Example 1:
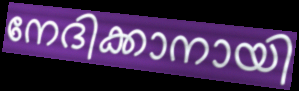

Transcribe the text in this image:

നേദിക്കാനായി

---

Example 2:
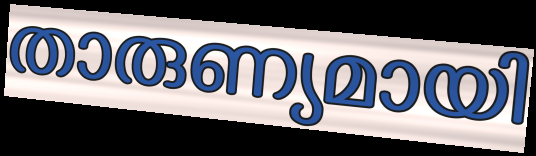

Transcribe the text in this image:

താരുണ്യമായി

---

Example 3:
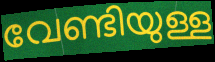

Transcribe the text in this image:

വേണ്ടിയുള്ള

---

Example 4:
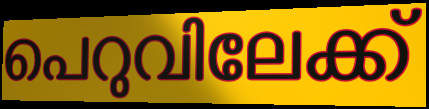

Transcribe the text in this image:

പെറുവിലേക്ക്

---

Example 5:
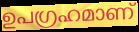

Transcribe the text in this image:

ഉപഗ്രഹമാണ്